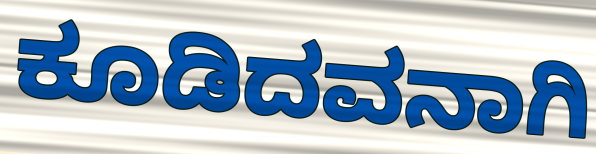
ಕೂಡಿದವನಾಗಿ